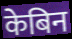
केबिन